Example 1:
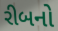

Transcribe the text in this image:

રીબનો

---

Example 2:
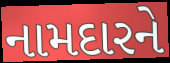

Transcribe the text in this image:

નામદારને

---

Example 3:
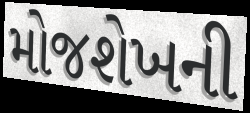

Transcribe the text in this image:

મોજશેખની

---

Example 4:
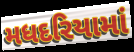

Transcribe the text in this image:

મધદરિયામાં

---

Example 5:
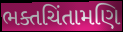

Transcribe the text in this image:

ભક્તચિંતામણિ